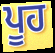
ਪੂਹ